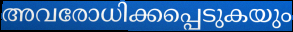
അവരോധിക്കപ്പെടുകയും